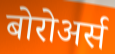
बोरोअर्स